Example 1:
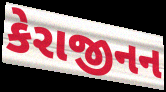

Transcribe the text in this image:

કેરાજીનન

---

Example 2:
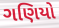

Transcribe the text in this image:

ગણિયો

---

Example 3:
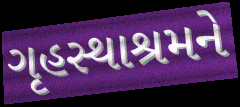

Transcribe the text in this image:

ગૃહસ્થાશ્રમને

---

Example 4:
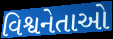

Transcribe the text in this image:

વિશ્વનેતાઓ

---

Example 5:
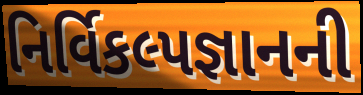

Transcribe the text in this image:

નિર્વિકલ્પજ્ઞાનની